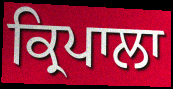
ਕ੍ਰਿਪਾਲਾ